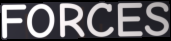
FORCES